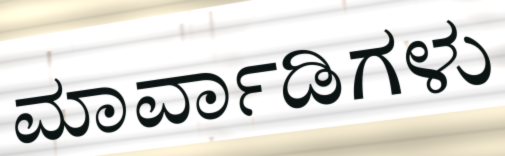
ಮಾರ್ವಾಡಿಗಳು